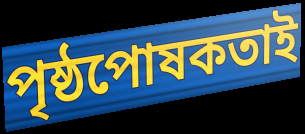
পৃষ্ঠপোষকতাই